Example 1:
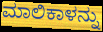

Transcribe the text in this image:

ಮಾಲಿಕಾಳನ್ನು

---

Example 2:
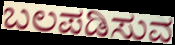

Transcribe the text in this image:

ಬಲಪಡಿಸುವ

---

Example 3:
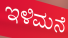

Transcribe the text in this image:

ಇಳಿಮನೆ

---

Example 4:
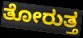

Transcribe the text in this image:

ತೋರುತ್ತ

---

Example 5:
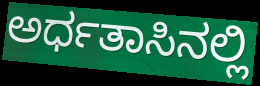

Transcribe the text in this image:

ಅರ್ಧತಾಸಿನಲ್ಲಿ